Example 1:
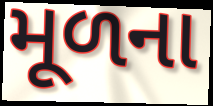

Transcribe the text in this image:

મૂળના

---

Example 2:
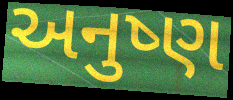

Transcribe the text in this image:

અનુષ્ણ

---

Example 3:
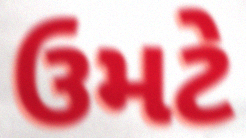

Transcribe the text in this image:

ઉમટે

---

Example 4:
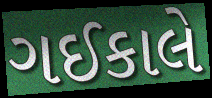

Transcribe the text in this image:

ગઈકાલે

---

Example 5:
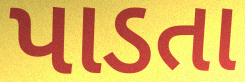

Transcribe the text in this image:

પાડતા